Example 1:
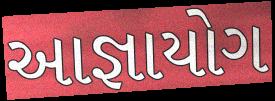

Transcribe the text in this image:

આજ્ઞાયોગ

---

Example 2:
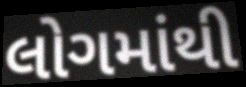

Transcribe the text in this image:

લોગમાંથી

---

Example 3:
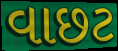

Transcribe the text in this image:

વાછટ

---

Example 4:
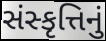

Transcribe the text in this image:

સંસ્કૃત્તિનું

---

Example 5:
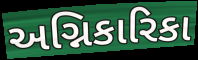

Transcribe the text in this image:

અગ્નિકારિકા